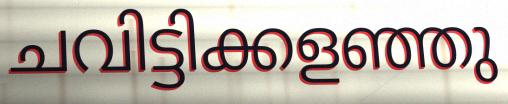
ചവിട്ടിക്കളഞ്ഞു